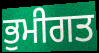
ਭੁਮੀਗਤ